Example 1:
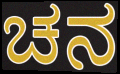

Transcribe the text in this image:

ಚನ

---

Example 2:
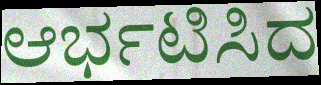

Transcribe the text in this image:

ಆರ್ಭಟಿಸಿದ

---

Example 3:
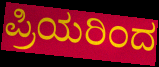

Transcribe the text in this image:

ಪ್ರಿಯರಿಂದ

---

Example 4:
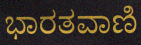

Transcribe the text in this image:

ಭಾರತವಾಣಿ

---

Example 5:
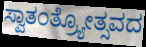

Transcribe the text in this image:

ಸ್ವಾತಂತ್ರ್ಯೋತ್ಸವದ